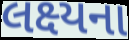
લક્ષ્યના